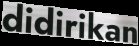
didirikan